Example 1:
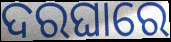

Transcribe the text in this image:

ଦରଘାରେ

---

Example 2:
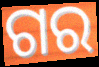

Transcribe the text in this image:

ଗର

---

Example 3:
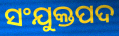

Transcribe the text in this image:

ସଂଯୁକ୍ତପଦ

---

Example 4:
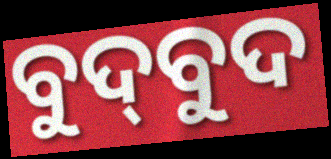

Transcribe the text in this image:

ବୁଦ୍‌ବୁଦ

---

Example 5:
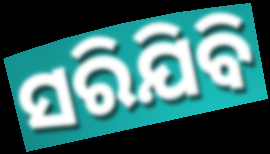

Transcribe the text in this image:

ସରିଯିବି